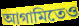
আগামিতেও